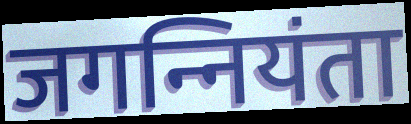
जगन्नियंता